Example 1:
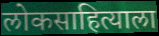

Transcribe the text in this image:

लोकसाहित्याला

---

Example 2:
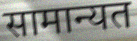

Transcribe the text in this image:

सामान्यत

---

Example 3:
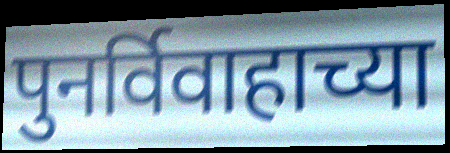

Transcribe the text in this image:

पुनर्विवाहाच्या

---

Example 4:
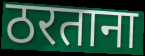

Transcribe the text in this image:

ठरताना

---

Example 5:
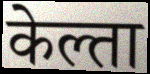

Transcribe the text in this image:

केल्ता